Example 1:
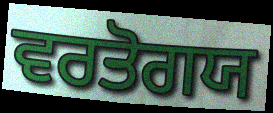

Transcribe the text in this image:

ਵਰਤੋਗਯ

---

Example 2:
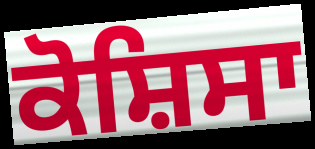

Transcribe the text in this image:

ਕੋਸ਼ਿਸਾ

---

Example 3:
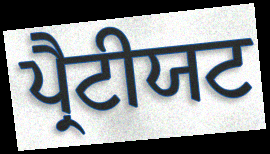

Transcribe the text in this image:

ਪ੍ਰੈਟੀਯਟ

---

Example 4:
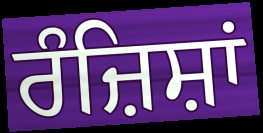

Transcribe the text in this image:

ਰੰਜ਼ਿਸ਼ਾਂ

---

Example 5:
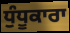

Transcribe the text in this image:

ਧੁੰਧੂਕਾਰਾ